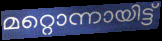
മറ്റൊന്നായിട്ട്